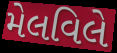
મેલવિલે